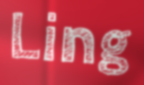
Ling